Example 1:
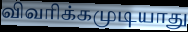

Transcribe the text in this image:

விவரிக்கமுடியாது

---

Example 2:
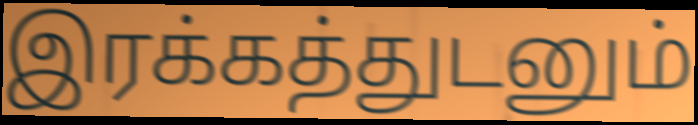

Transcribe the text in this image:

இரக்கத்துடனும்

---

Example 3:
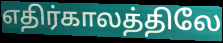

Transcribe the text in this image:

எதிர்காலத்திலே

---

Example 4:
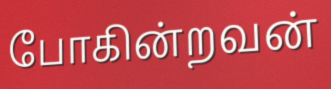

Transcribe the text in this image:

போகின்றவன்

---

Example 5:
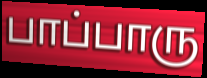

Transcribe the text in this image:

பாப்பாரு